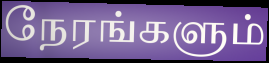
நேரங்களும்